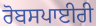
ਰੋਬਸਪਾਈਰੀ